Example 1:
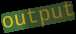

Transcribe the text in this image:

output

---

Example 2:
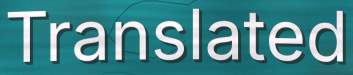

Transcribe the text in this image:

Translated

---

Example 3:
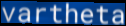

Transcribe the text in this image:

vartheta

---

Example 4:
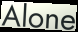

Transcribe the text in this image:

Alone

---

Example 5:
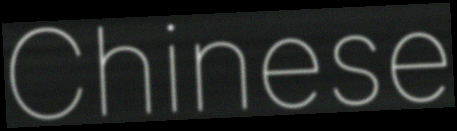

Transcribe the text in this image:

Chinese